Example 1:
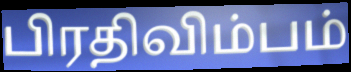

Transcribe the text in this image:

பிரதிவிம்பம்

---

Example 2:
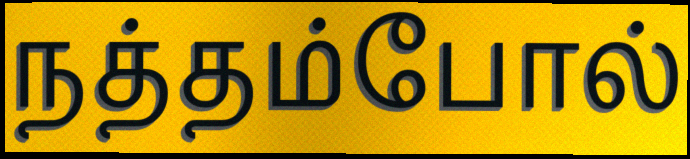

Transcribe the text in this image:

நத்தம்போல்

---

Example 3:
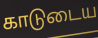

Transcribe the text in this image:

காடுடைய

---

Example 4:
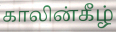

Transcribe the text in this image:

காலின்கீழ்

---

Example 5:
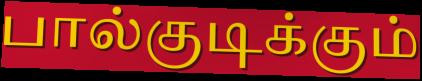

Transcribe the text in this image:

பால்குடிக்கும்